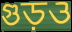
গুড়ও